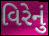
વિરેનું